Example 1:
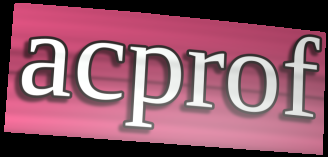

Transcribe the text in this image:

acprof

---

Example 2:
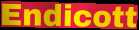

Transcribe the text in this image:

Endicott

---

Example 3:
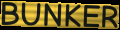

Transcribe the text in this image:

BUNKER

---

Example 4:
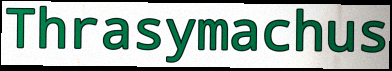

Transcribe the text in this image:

Thrasymachus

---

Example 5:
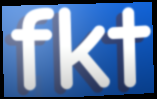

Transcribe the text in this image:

fkt